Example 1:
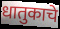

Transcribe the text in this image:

धातुकाचे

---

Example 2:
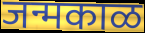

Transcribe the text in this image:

जन्मकाळ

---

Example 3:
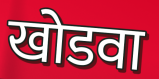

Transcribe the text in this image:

खोडवा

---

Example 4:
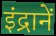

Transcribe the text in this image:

इंद्रानें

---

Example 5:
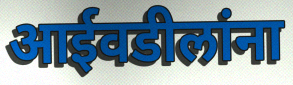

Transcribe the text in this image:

आईवडीलांना